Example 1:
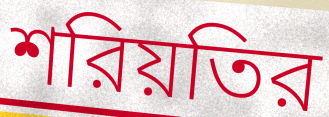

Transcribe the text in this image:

শরিয়তির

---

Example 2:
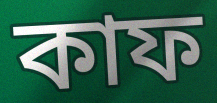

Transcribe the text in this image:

কাফ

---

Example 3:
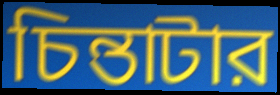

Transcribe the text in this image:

চিন্তাটার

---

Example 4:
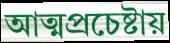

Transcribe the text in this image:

আত্মপ্রচেষ্টায়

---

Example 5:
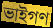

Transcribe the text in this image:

ভাইগণ